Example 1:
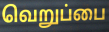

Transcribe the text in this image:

வெறுப்பை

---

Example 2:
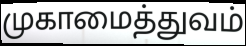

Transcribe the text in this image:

முகாமைத்துவம்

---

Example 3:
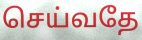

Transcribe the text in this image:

செய்வதே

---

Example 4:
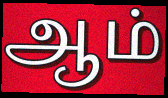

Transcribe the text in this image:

ஆம்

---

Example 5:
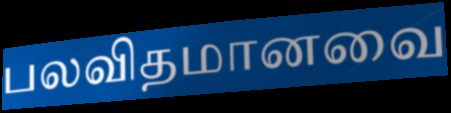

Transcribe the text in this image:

பலவிதமானவை